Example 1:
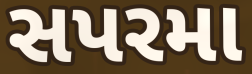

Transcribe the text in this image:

સપરમા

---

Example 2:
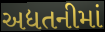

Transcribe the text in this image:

અદ્યતનીમાં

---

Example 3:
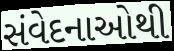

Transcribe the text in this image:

સંવેદનાઓથી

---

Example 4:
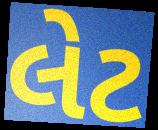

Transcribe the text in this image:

લેટ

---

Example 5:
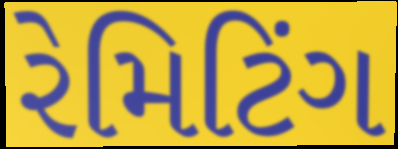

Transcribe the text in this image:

રેમિટિંગ